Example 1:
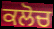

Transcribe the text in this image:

ਕਲੋਚ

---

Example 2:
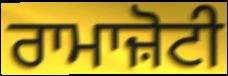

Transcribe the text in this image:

ਰਾਮਾਜ਼ੋਟੀ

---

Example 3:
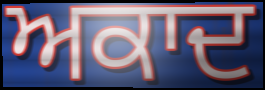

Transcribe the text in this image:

ਅਕਾਦ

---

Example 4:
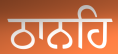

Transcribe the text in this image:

ਠਾਨਹਿ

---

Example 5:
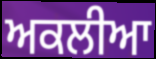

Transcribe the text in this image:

ਅਕਲੀਆ